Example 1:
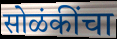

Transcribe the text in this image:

सोळंकींचा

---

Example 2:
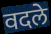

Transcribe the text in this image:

वदले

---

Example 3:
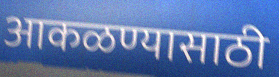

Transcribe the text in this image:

आकळण्यासाठी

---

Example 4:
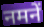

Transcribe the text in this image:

नमनें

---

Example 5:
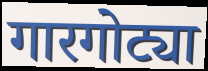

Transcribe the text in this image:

गारगोट्या